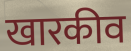
खारकीव